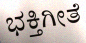
ಭಕ್ತಿಗೀತೆ